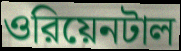
ওরিয়েনটাল